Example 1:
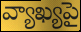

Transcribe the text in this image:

వ్యాఖ్యపై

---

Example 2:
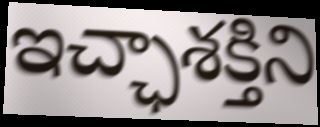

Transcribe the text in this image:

ఇచ్ఛాశక్తిని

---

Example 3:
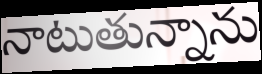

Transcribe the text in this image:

నాటుతున్నాను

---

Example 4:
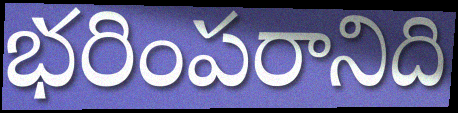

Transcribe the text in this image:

భరింపరానిది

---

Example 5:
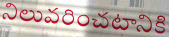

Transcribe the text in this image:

నిలువరించటానికి